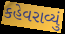
કહેવરાવ્યું